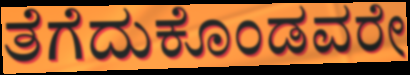
ತೆಗೆದುಕೊಂಡವರೇ